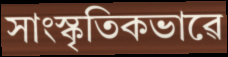
সাংস্কৃতিকভাৱে